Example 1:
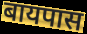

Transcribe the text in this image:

बायपास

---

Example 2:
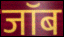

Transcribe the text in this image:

जॉब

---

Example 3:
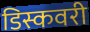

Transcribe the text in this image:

डिस्कवरी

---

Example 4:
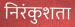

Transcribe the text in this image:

निरंकुशता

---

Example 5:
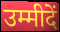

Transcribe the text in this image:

उम्मीदें